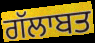
ਗੱਲਾਬਤ